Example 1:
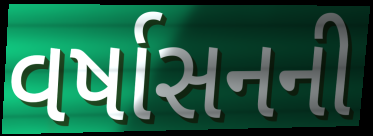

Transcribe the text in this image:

વર્ષાસનની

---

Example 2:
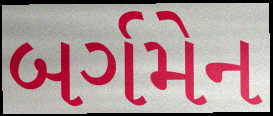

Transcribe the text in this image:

બર્ગમેન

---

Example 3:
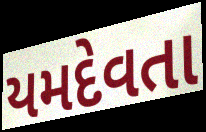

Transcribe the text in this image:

યમદેવતા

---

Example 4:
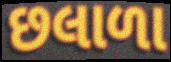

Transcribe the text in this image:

છલાળા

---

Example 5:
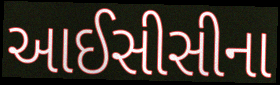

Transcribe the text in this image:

આઈસીસીના